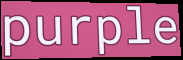
purple